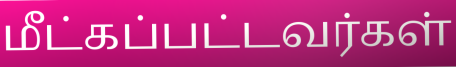
மீட்கப்பட்டவர்கள்